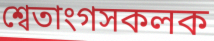
শ্বেতাংগসকলক